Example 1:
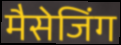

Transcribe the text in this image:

मैसेजिंग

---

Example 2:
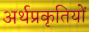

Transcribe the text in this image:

अर्थप्रकृतियों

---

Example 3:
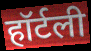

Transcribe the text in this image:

हॉर्टली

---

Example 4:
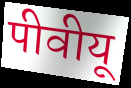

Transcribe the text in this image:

पीवीयू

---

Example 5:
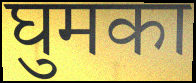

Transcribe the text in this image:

घुमका